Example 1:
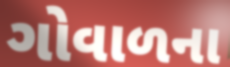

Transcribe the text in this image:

ગોવાળના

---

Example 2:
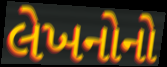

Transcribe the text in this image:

લેખનોનો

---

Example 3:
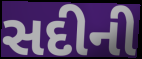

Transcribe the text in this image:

સદીની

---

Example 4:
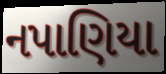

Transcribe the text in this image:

નપાણિયા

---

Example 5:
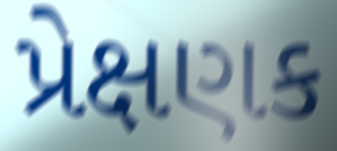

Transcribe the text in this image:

પ્રેક્ષણક